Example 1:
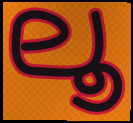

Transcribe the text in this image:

ലൂ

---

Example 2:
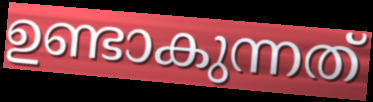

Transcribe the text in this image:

ഉണ്ടാകുന്നത്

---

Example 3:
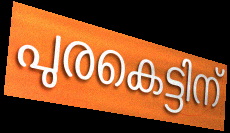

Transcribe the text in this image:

പുരകെട്ടിന്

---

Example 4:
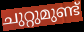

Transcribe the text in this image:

ചുറ്റുമുണ്ട്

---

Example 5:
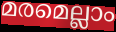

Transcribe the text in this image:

മരമെല്ലാം